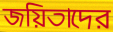
জয়িতাদের